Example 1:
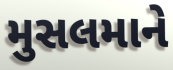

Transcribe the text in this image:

મુસલમાને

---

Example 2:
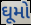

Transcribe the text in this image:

ઘૂમો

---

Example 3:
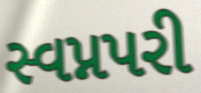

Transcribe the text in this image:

સ્વપ્નપરી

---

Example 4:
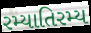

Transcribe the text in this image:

રમ્યાતિરમ્ય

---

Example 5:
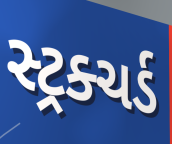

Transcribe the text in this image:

સ્ટ્રક્ચર્ડ